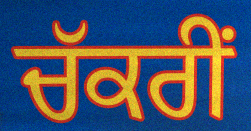
ਚੱਕਰੀਂ